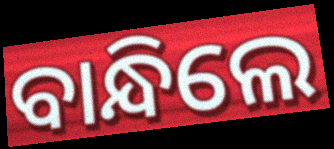
ବାନ୍ଧିଲେ